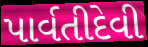
પાર્વતીદેવી